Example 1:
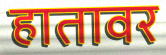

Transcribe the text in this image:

हातावर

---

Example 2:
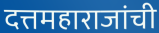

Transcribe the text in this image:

दत्तमहाराजांची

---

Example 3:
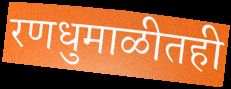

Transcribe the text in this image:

रणधुमाळीतही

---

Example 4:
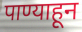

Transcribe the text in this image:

पाण्याहून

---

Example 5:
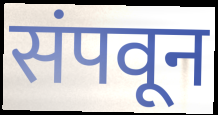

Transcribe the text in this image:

संपवून